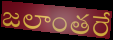
జలాంతరే